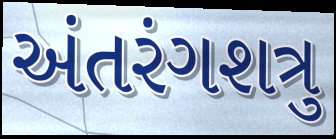
અંતરંગશત્રુ